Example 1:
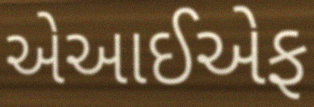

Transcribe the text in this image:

એઆઈએફ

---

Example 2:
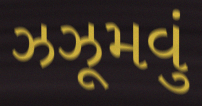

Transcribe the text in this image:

ઝઝૂમવું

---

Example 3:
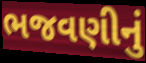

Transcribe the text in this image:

ભજવણીનું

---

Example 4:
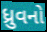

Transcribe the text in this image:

ધ્રુવનો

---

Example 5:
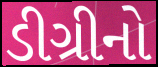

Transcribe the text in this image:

ડીગ્રીનો